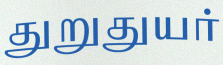
துறுதுயர்